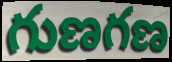
గుణగణ